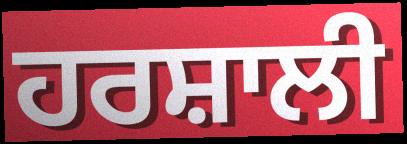
ਹਰਸ਼ਾਲੀ